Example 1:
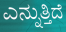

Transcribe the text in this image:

ಎನ್ನುತ್ತಿದೆ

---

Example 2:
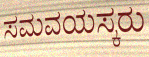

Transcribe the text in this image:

ಸಮವಯಸ್ಕರು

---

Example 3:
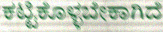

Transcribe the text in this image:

ಕಟ್ಟಿಕೊಳ್ಳಬೇಕಾಗಿದೆ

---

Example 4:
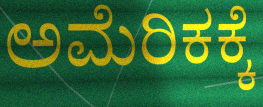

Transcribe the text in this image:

ಅಮೆರಿಕಕ್ಕೆ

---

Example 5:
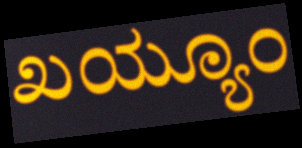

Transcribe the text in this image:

ಖಯ್ಯೂಂ